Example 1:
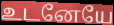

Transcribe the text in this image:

உடனேயே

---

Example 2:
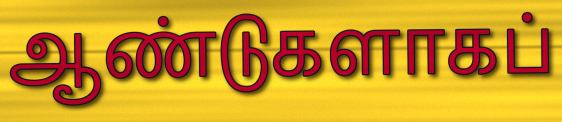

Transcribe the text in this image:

ஆண்டுகளாகப்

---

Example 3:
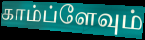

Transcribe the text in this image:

காம்ப்ளேவும்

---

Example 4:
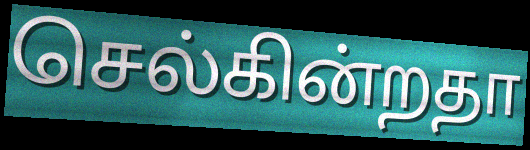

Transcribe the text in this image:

செல்கின்றதா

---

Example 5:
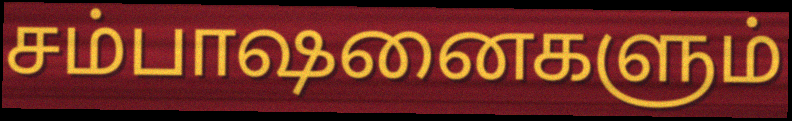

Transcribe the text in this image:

சம்பாஷனைகளும்